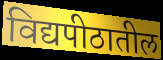
विद्यपीठातील